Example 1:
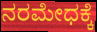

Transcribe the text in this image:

ನರಮೇಧಕ್ಕೆ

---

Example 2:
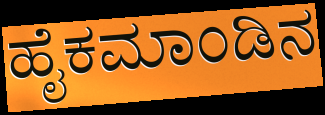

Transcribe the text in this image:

ಹೈಕಮಾಂಡಿನ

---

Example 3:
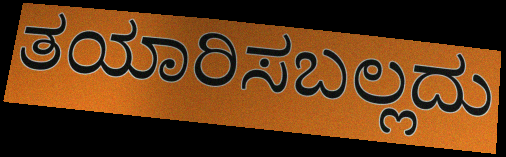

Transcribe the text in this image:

ತಯಾರಿಸಬಲ್ಲದು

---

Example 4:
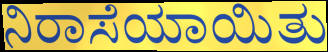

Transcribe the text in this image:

ನಿರಾಸೆಯಾಯಿತು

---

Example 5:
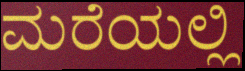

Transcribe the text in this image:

ಮರೆಯಲ್ಲಿ